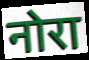
नोरा